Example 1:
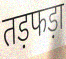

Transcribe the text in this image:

तड़फड़ा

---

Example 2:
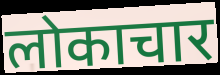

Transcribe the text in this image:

लोकाचार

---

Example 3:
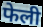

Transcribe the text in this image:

फेली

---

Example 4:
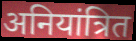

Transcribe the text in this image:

अनियांत्रित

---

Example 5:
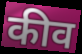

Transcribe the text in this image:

कीव